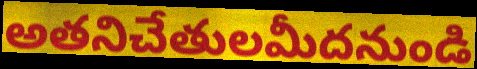
అతనిచేతులమీదనుండి